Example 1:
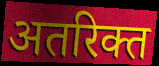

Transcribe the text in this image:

अतरिक्त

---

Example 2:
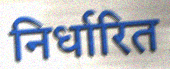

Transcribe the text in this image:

निर्धारित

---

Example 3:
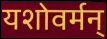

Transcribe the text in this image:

यशोवर्मन्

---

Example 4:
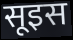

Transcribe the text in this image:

सूइस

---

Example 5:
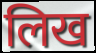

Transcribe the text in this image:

लिख